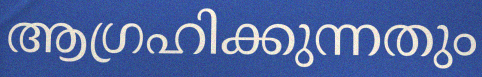
ആഗ്രഹിക്കുന്നതും